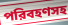
পরিবহণসহ